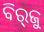
ବିର୍‌ଜୁ